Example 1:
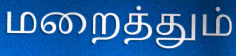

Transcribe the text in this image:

மறைத்தும்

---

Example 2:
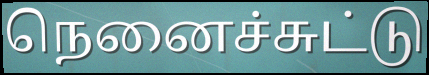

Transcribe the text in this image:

நெனைச்சுட்டு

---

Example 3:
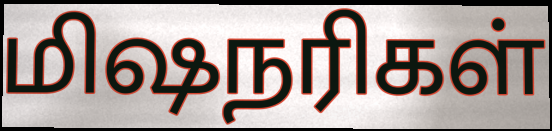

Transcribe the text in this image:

மிஷநரிகள்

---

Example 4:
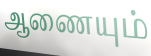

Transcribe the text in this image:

ஆணையும்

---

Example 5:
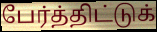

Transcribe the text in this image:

பேர்த்திட்டுக்